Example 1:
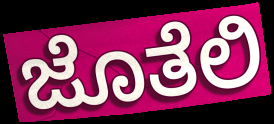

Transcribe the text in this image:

ಜೊತೆಲಿ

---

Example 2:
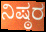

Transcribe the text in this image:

ನಿಷ್ಠರ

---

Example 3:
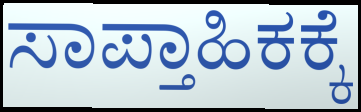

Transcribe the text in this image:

ಸಾಪ್ತಾಹಿಕಕ್ಕೆ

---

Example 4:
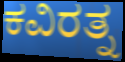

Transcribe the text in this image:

ಕವಿರತ್ನ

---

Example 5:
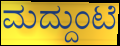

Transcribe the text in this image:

ಮದ್ದುಂಟೆ